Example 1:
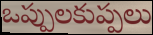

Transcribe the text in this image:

ఒప్పులకుప్పలు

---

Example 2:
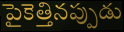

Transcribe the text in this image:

పైకెత్తినప్పుడు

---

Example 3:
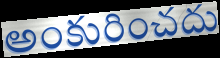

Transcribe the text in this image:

అంకురించదు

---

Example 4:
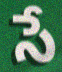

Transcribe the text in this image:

సే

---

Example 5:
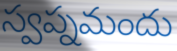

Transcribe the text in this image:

స్వప్నమందు